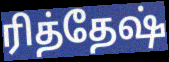
ரித்தேஷ்